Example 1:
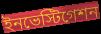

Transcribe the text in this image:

ইনভেস্টিগেশন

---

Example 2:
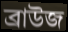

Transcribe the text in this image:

ব্রাউজ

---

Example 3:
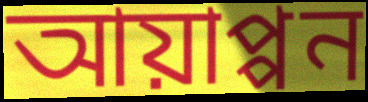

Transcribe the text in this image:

আয়াপ্পন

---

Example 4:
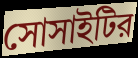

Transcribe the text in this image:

সোসাইটির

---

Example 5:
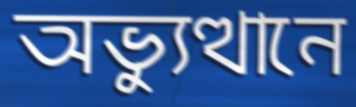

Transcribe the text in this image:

অভ্যুত্থানে